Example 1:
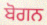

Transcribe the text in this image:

ਬੋਗਨ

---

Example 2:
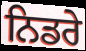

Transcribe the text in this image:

ਨਿਡਰੇ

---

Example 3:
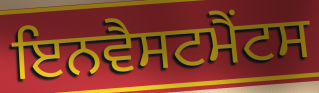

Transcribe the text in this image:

ਇਨਵੈਸਟਮੈਂਟਸ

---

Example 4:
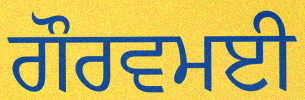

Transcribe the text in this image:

ਗੌਰਵਮਈ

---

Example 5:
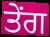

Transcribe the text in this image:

ਤੇਂਗ